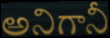
అనిగానీ